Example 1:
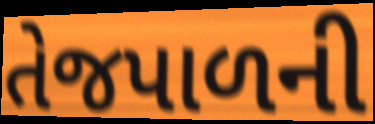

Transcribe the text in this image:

તેજપાળની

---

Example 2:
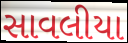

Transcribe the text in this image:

સાવલીયા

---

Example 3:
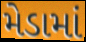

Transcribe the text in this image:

મેડામાં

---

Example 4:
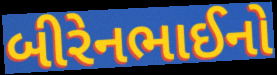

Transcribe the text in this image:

બીરેનભાઈનો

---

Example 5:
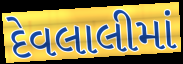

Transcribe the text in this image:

દેવલાલીમાં